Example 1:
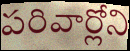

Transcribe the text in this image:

పరివార్లోని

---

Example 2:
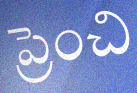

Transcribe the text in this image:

ప్రెంచి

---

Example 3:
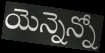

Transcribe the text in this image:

యెన్నెన్నో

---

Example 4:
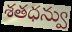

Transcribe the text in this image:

శతధన్వు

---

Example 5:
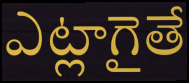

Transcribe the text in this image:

ఎట్లాగైతే